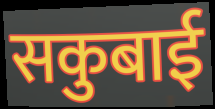
सकुबाई